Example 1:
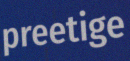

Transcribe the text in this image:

preetige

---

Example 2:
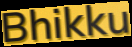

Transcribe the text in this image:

Bhikku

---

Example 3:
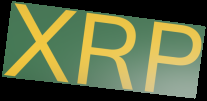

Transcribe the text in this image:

XRP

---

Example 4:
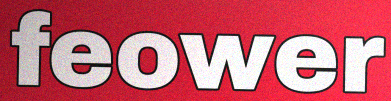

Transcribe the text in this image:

feower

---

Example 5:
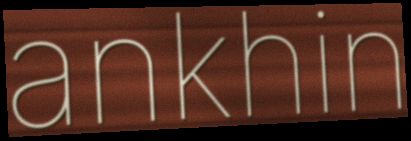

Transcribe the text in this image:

ankhin